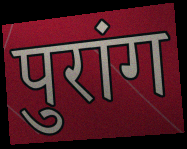
पुरांग